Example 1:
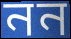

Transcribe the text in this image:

নন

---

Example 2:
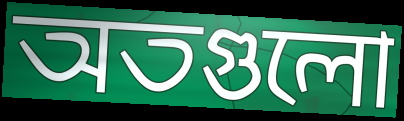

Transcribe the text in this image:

অতগুলো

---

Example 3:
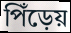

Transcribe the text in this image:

পিঁড়েয়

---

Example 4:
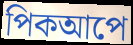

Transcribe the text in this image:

পিকআপে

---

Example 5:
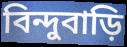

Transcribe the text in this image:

বিন্দুবাড়ি